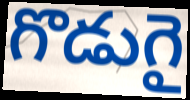
గొడుగై